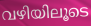
വഴിയിലൂടെ